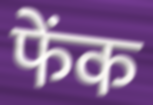
फेंक